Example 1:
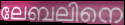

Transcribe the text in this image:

ലേബലിനെ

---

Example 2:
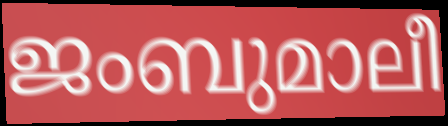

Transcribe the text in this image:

ജംബുമാലീ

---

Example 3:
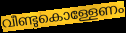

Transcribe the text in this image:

വീണ്ടുകൊള്ളേണം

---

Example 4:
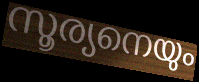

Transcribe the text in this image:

സൂര്യനെയും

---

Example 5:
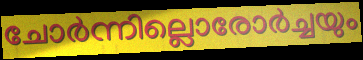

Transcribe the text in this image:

ചോർന്നില്ലൊരോർച്ചയും